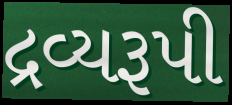
દ્રવ્યરૂપી